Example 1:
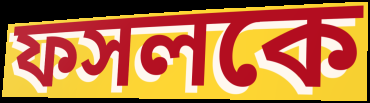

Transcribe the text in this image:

ফসলকে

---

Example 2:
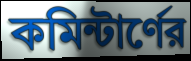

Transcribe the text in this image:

কমিন্টার্ণের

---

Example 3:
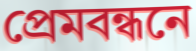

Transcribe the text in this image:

প্রেমবন্ধনে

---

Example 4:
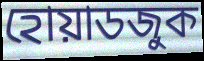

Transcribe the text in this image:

হোয়াডজুক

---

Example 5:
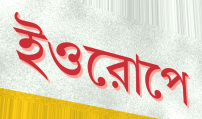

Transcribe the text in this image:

ইওরোপে